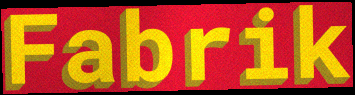
Fabrik